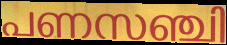
പണസഞ്ചി